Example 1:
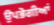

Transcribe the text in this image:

ਉਪਭੋਗੀਆਂ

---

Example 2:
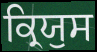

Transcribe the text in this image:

ਕ੍ਰਿਯੁਸ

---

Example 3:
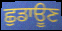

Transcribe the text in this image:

ਛੁਡਾਊਣ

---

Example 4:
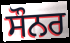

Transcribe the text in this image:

ਸੌਨਰ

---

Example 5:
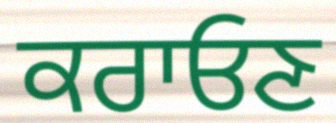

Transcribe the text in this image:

ਕਰਾਓਣ